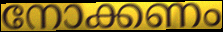
നോക്കണം